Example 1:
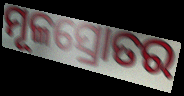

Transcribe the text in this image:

ମୂଳସ୍ରୋତର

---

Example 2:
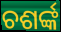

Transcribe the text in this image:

ଚଶର୍ଙ୍କ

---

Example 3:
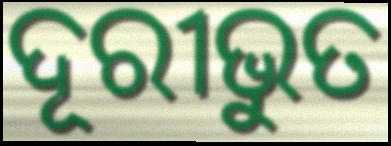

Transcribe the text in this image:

ଦୂରୀଭୁତ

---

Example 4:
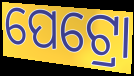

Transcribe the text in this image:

ପେଟ୍ରୋ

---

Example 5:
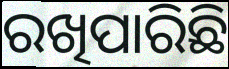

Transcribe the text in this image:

ରଖିପାରିଛି